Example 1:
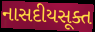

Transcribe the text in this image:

નાસદીયસૂક્ત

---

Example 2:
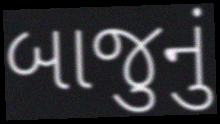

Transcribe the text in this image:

બાજુનું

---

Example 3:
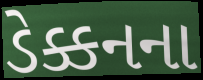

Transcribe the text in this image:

ડેક્કનના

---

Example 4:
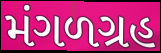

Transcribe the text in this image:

મંગળગ્રહ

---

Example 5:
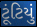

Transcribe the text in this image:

ટૂંટિયું